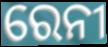
ରେନୀ